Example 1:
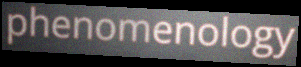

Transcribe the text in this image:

phenomenology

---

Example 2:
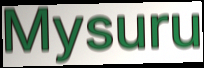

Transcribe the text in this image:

Mysuru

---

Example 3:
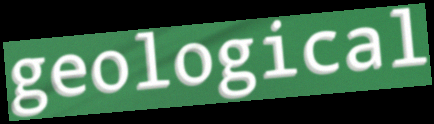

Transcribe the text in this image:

geological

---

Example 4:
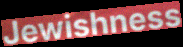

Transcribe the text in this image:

Jewishness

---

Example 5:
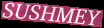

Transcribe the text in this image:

SUSHMEY